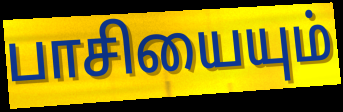
பாசியையும்